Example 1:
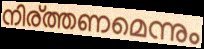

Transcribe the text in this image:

നിര്ത്തണമെന്നും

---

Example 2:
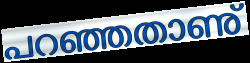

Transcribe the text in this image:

പറഞ്ഞതാണു്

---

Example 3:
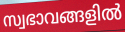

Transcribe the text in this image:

സ്വഭാവങ്ങളിൽ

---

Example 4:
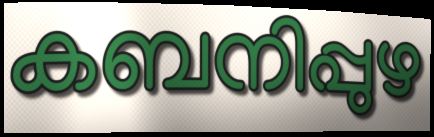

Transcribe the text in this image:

കബനിപ്പുഴ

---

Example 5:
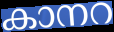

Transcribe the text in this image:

കാനറ